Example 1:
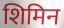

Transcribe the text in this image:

शिमिन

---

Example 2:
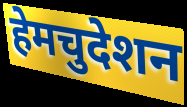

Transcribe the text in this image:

हेमचुदेशन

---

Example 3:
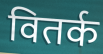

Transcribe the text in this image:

वितर्क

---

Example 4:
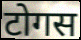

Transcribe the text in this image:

टोगस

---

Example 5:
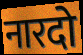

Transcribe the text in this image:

नारदो